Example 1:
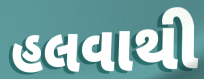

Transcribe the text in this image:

હલવાથી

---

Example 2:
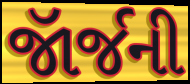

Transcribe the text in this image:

જૉર્જની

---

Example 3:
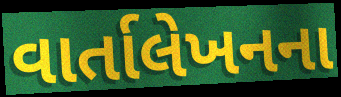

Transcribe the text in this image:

વાર્તાલેખનના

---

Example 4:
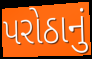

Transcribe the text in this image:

પરોઠાનું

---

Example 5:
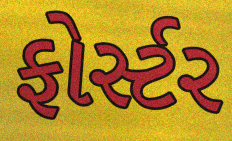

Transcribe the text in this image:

ફોર્સ્ટર